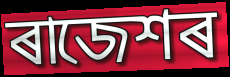
ৰাজেশৰ